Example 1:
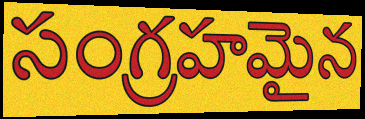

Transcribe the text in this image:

సంగ్రహమైన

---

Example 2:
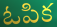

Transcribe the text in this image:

ఓపిక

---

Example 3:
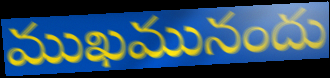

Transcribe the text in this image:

ముఖమునందు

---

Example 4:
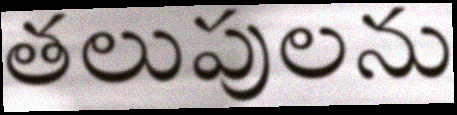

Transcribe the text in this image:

తలుపులను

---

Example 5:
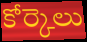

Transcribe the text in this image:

కోర్కెలు